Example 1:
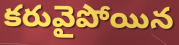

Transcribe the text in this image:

కరువైపోయిన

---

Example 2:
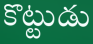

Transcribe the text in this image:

కొట్టుడు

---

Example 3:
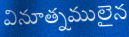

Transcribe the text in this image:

వినూత్నములైన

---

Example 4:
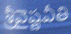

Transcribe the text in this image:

శ్రీవైష్ణవీతి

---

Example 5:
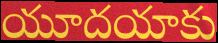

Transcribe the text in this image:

యూదయాకు